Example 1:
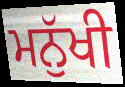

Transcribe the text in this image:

ਮਨੁੱਖੀ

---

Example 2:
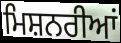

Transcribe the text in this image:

ਮਿਸ਼ਨਰੀਆਂ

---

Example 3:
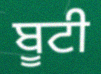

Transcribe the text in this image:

ਬੂਟੀ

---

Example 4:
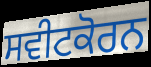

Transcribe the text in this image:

ਸਵੀਟਕੋਰਨ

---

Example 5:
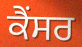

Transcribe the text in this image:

ਕੈਂਸਰ